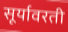
सूर्यावरती